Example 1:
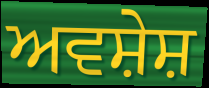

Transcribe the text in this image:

ਅਵਸ਼ੇਸ਼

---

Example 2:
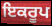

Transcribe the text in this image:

ਇਕਰੂਪ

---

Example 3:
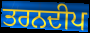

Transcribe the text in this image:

ਤਰਨਦੀਪ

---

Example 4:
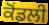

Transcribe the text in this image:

ਕੋਂਡਲੀ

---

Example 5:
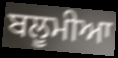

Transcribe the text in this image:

ਬਲੂਮੀਆ